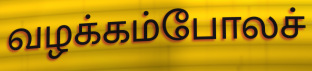
வழக்கம்போலச்